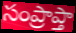
సంప్రాప్తా